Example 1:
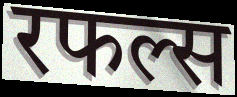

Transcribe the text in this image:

रफल्स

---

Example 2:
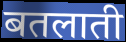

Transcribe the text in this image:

बतलाती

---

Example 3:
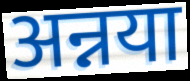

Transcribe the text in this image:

अन्नया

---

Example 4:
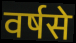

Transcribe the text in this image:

वर्षसे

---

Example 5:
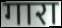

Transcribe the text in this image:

गारा